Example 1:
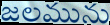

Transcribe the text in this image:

జలమును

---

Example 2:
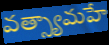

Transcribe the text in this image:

వత్స్యామహే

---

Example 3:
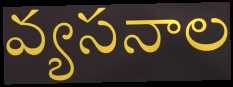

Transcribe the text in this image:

వ్యసనాల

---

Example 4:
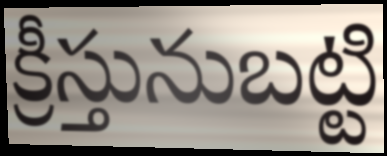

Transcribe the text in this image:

క్రీస్తునుబట్టి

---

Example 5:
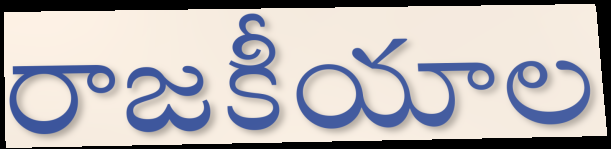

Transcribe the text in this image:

రాజకీయాల